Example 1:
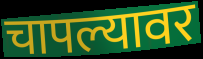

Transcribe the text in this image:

चापल्यावर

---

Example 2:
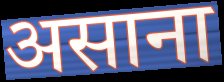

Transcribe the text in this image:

असाना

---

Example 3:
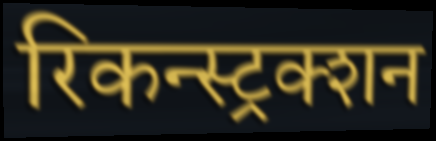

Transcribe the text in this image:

रिकन्स्ट्रक्शन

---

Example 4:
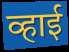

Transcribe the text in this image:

व्हाई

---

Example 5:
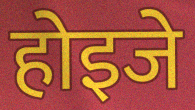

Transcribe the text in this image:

होइजे